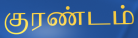
குரண்டம்